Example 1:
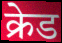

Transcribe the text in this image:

क्रेड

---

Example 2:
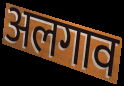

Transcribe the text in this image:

अलगाव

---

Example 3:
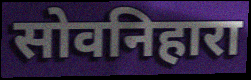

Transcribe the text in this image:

सोवनिहारा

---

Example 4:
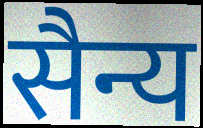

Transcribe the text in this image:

सैन्य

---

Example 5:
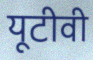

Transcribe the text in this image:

यूटीवी